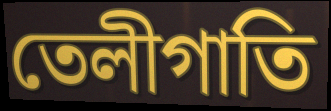
তেলীগাতি